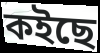
কইছে